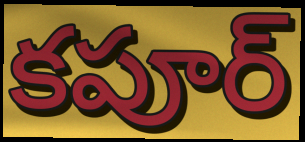
కపూర్